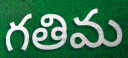
గతిమ